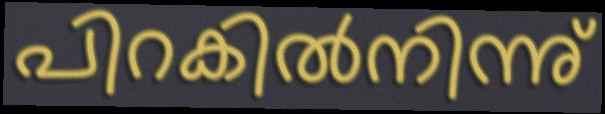
പിറകിൽനിന്നു്